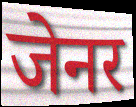
जेनर